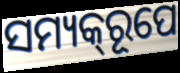
ସମ୍ୟକ୍‌ରୂପେ